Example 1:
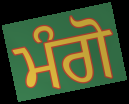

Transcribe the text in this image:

ਮੰਗੋ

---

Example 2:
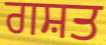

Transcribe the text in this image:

ਗਸ਼ਤ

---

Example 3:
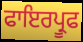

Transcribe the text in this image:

ਫਾਇਰਪ੍ਰੂਫ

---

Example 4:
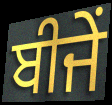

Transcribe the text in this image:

ਬੀਜੇਂ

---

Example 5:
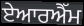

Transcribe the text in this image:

ਏਆਰਐੱਮ